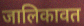
जालिकावत